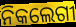
ନିକଲେଗୀ